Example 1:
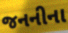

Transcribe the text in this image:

જનનીના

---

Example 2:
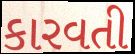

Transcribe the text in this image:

કારવતી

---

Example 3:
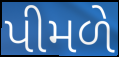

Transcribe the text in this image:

પીમળે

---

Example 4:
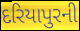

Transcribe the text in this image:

દરિયાપુરની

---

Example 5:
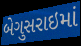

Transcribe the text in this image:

બેગુસરાઇમાં